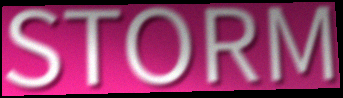
STORM